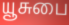
யூசுபை